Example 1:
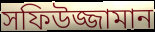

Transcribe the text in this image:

সফিউজ্জামান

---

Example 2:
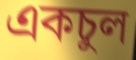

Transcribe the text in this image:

একচুল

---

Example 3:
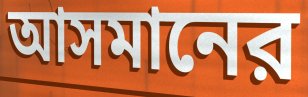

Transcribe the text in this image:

আসমানের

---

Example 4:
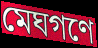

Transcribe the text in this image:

মেঘগণে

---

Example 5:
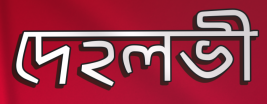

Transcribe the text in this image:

দেহলভী